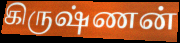
கிருஷ்ணன்